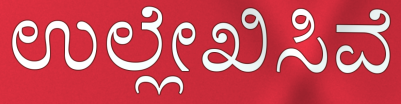
ಉಲ್ಲೇಖಿಸಿವೆ